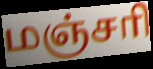
மஞ்சரி